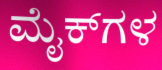
ಮೈಕ್‌ಗಳ